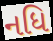
નધિ